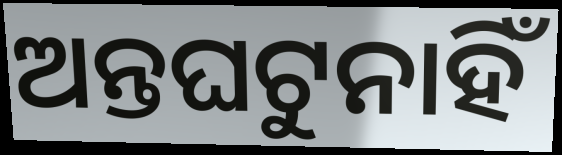
ଅନ୍ତଘଟୁନାହିଁ